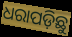
ଧରାପଡ଼ିଛୁ